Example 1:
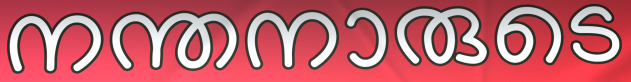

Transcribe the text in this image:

നന്തനാരുടെ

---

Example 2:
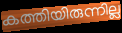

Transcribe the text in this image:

കത്തിയിരുന്നില്ല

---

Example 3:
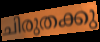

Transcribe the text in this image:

ചിരുതക്കു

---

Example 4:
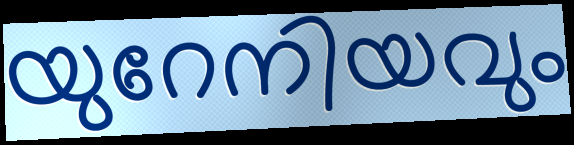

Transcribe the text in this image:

യുറേനിയവും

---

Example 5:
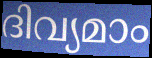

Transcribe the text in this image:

ദിവ്യമാം